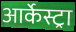
आर्केस्ट्रा